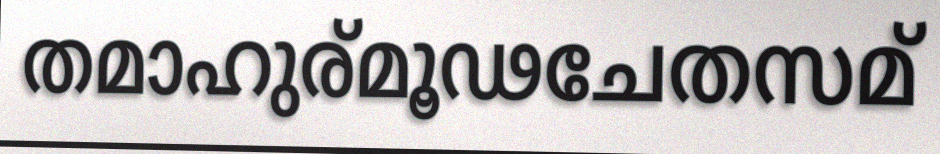
തമാഹുര്മൂഢചേതസമ്